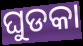
ଘୁଡକା